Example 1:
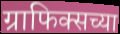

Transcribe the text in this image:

ग्राफिक्सच्या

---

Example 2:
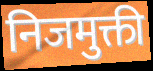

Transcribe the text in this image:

निजमुक्ती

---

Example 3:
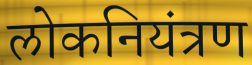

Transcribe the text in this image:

लोकनियंत्रण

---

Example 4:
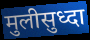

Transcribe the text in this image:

मुलीसुध्दा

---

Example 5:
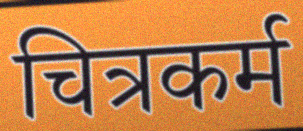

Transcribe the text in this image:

चित्रकर्म